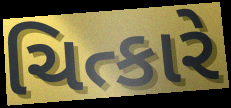
ચિત્કારે